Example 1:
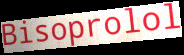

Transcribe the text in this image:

Bisoprolol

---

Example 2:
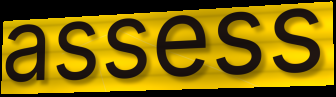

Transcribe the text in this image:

assess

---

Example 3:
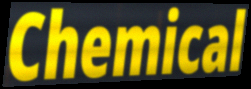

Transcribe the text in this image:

Chemical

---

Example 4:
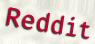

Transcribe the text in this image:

Reddit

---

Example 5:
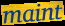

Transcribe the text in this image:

maint